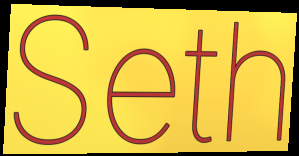
Seth